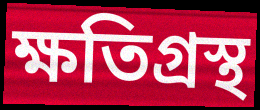
ক্ষতিগ্রস্থ